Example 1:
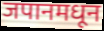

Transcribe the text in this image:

जपानमधून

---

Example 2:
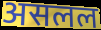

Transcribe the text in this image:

असलल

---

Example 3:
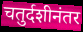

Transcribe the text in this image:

चतुर्दशीनंतर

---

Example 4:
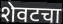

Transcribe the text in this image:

शेवटचा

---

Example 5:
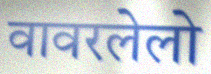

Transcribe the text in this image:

वावरलेलो